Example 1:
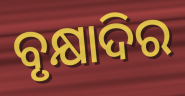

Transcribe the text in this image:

ବୃକ୍ଷାଦିର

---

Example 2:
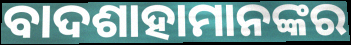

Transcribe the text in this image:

ବାଦଶାହାମାନଙ୍କର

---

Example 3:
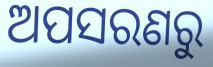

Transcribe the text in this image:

ଅପସରଣରୁ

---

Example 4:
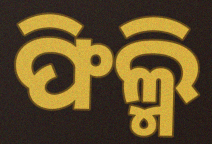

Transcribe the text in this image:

ଫିଲ୍ମି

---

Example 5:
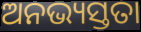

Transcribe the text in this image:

ଅନଭ୍ୟସ୍ତତା